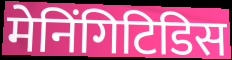
मेनिंगिटिडिस